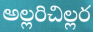
అల్లరిచిల్లర